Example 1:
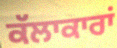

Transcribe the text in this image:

ਕੱਲਾਕਾਰਾਂ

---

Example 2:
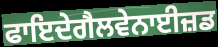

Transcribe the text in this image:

ਫਾਇਦੇਗੈਲਵੇਨਾਈਜ਼ਡ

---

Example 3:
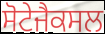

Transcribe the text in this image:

ਸੋਟੇਜੈਕਸਲ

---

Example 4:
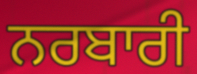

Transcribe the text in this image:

ਨਰਬਾਰੀ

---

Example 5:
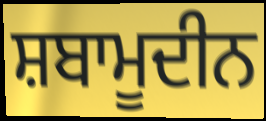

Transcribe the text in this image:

ਸ਼ਬਾਮੂਦੀਨ